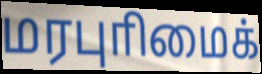
மரபுரிமைக்